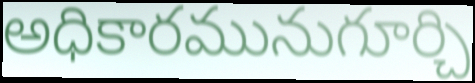
అధికారమునుగూర్చి